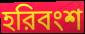
হরিবংশ